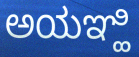
ಅಯಞ್ಹಿ